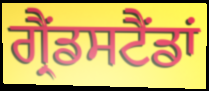
ਗ੍ਰੈਂਡਸਟੈਂਡਾਂ